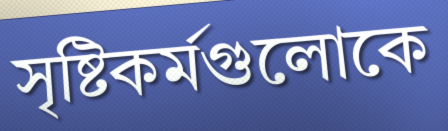
সৃষ্টিকর্মগুলোকে